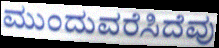
ಮುಂದುವರೆಸಿದೆವು